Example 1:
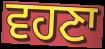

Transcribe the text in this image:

ਵਹਣਾ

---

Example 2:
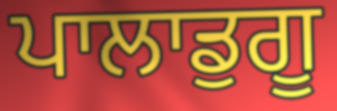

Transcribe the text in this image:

ਪਾਲਾਡੁਗੂ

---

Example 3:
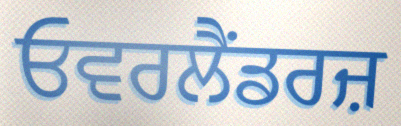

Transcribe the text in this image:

ਓਵਰਲੈਂਡਰਜ਼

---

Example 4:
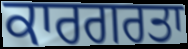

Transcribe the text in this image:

ਕਾਰਗਰਤਾ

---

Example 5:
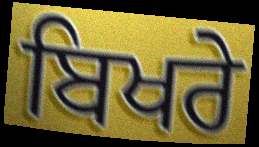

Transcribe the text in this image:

ਬਿਖਰੇ